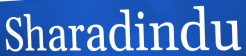
Sharadindu